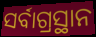
ସର୍ବାଗ୍ରସ୍ଥାନ